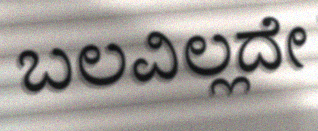
ಬಲವಿಲ್ಲದೇ